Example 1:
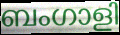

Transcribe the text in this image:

ബംഗാളി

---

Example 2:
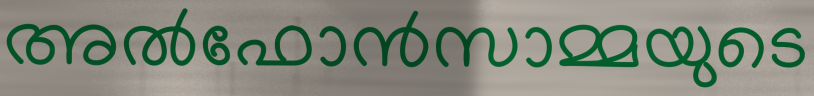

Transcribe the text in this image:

അൽഫോൻസാമ്മയുടെ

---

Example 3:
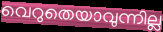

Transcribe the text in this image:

വെറുതെയാവുന്നില്ല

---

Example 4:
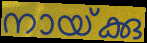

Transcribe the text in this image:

നായ്‌ക്കു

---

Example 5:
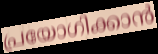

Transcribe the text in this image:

പ്രയോഗിക്കാൻ